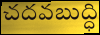
చదవబుద్ధి